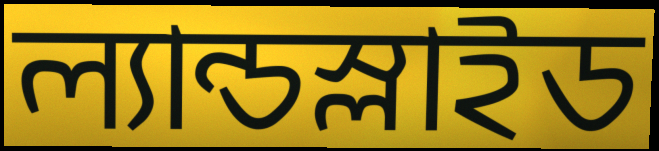
ল্যান্ডস্লাইড